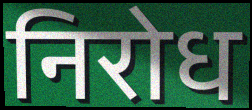
निरोध